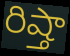
రిష్తా